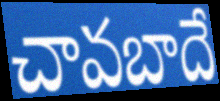
చావబాదే